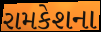
રામકેશના